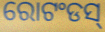
ରୋଟଂଡସ୍